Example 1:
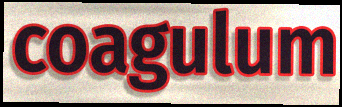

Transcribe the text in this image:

coagulum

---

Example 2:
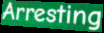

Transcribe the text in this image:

Arresting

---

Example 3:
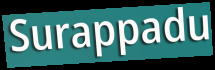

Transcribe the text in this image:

Surappadu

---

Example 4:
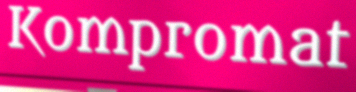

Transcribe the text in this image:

Kompromat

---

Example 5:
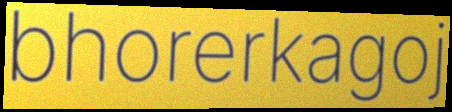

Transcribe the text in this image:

bhorerkagoj